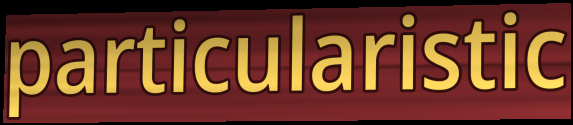
particularistic